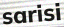
sarisi